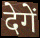
देगें